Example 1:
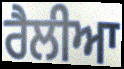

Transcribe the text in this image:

ਰੈਲੀਆ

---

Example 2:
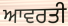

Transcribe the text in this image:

ਆਵਰਤੀ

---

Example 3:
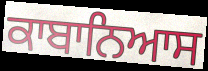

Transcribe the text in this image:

ਕਾਬਾਨਿਆਸ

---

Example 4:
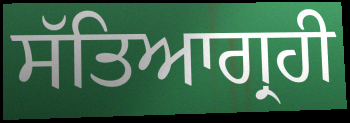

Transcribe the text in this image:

ਸੱਤਿਆਗ੍ਰਹੀ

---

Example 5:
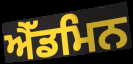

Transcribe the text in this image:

ਐੱਡਮਿਨ